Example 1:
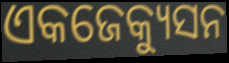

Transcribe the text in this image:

ଏକଜେକ୍ୟୁସନ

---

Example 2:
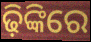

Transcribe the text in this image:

ଢ଼ିଙ୍କିରେ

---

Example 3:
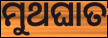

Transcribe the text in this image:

ମୁଥଘାତ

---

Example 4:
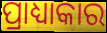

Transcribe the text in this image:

ପ୍ରାଧ୍ୟାକାର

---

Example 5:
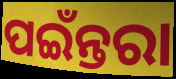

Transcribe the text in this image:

ପଇଁନ୍ତରା